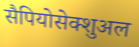
सैपियोसेक्शुअल